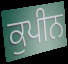
ਕੁਪੀਨ